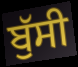
ਬੁੱਸੀ